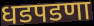
धडपडणा